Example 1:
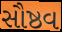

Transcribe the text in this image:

સૌષ્ઠવ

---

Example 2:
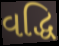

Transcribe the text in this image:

વદ્ધિ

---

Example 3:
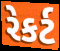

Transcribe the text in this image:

રેકર્ટ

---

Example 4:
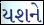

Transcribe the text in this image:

યશને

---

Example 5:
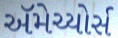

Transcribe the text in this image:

ઍમેચ્યોર્સ